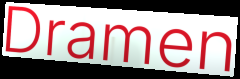
Dramen